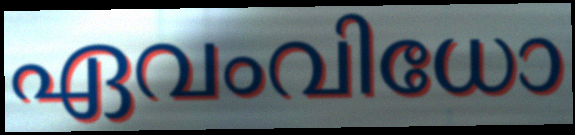
ഏവംവിധോ